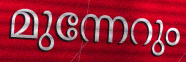
മുന്നേറും